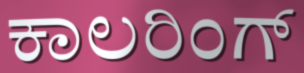
ಕಾಲರಿಂಗ್